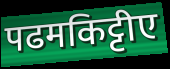
पढमकिट्टीए